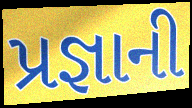
પ્રજ્ઞાની